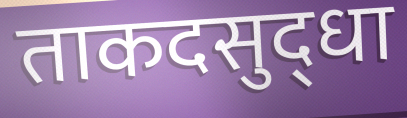
ताकदसुद्धा